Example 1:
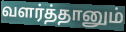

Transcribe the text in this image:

வளர்த்தானும்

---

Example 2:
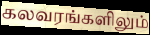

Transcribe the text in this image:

கலவரங்களிலும்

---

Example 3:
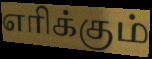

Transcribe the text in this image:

எரிக்கும்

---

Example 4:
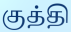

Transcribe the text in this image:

குத்தி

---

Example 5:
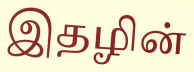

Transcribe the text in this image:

இதழின்